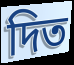
দিত